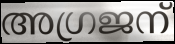
അഗ്രജന്